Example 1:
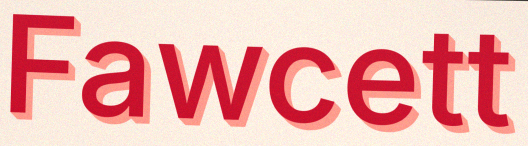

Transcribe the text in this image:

Fawcett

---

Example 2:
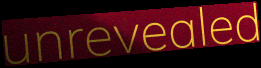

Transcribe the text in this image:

unrevealed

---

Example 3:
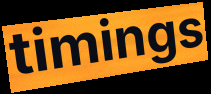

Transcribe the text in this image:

timings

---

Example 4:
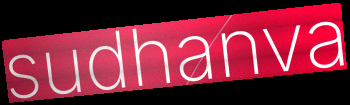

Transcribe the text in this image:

sudhanva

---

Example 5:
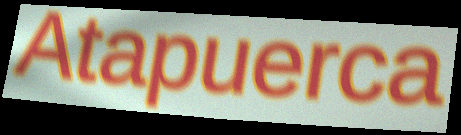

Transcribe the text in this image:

Atapuerca